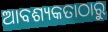
ଆବଶ୍ୟକତାଠାରୁ